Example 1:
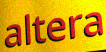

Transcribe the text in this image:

altera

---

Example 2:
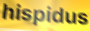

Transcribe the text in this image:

hispidus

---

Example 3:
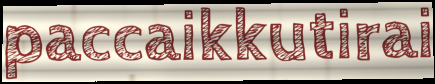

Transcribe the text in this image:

paccaikkutirai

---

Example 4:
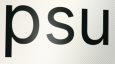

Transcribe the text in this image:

psu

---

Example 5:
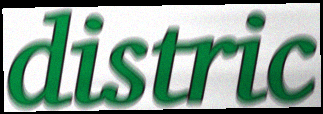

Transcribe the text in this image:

distric